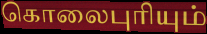
கொலைபுரியும்